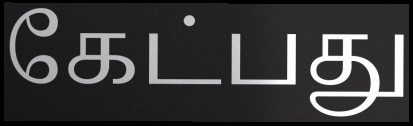
கேட்பது